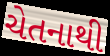
ચેતનાથી